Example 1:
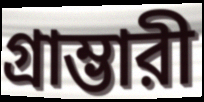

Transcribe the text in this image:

গ্রাম্ভারী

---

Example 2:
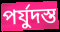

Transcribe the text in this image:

পর্যুদস্ত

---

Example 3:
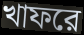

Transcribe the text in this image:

খাফরে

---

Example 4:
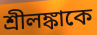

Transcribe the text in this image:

শ্রীলঙ্কাকে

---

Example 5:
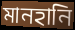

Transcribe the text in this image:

মানহানি